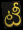
టీ